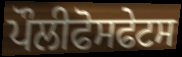
ਪੌਲੀਫੋਸਫੇਟਸ